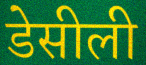
डेसीली